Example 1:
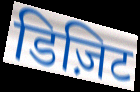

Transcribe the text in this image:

डिज़िट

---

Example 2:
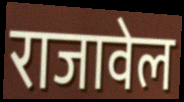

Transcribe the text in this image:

राजावेल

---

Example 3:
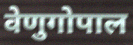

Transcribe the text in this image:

वेणुगोपाल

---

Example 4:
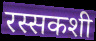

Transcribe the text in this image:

रस्सकशी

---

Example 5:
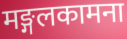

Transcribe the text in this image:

मङ्गलकामना